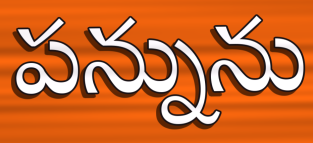
పన్నును